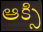
ఆక్సి